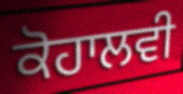
ਕੋਹਾਲਵੀ